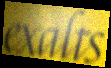
exalts